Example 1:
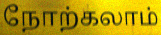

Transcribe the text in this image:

நோற்கலாம்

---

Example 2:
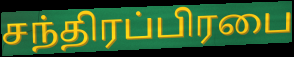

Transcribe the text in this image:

சந்திரப்பிரபை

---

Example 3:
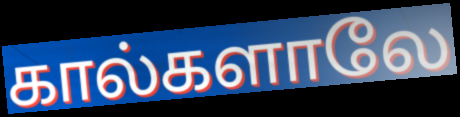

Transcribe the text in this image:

கால்களாலே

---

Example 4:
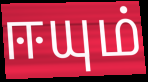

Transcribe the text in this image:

ஈயும்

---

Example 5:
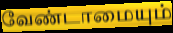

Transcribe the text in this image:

வேண்டாமையும்